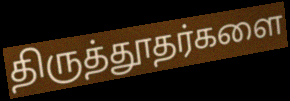
திருத்தூதர்களை